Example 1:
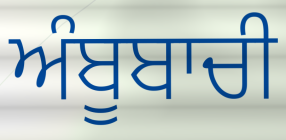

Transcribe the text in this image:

ਅੰਬੂਬਾਚੀ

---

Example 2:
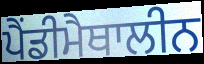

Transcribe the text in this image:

ਪੈਂਡੀਮੈਥਾਲੀਨ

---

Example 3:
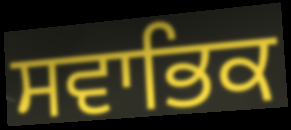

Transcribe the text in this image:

ਸਵਾਭਿਕ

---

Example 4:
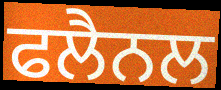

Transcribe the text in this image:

ਫਲੈਨਲ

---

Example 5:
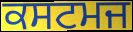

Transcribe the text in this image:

ਕਸਟਮਜ